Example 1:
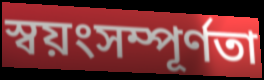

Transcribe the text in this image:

স্বয়ংসম্পূর্ণতা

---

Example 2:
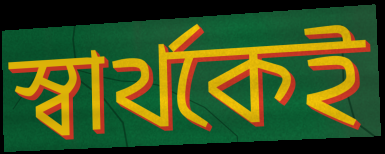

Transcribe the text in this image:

স্বার্থকেই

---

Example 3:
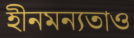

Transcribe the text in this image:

হীনমন্যতাও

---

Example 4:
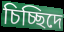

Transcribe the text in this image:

চিচ্ছিদে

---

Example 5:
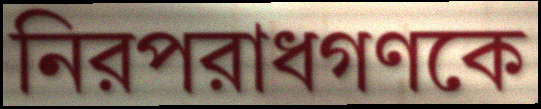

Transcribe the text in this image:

নিরপরাধগণকে